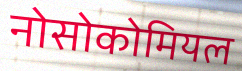
नोसोकोमियल